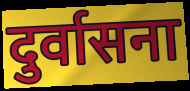
दुर्वासना